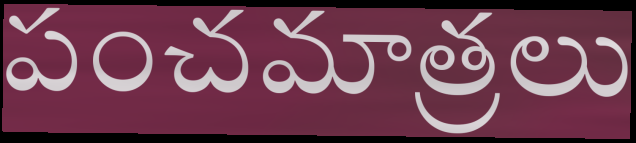
పంచమాత్రలు